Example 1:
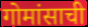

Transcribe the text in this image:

गोमांसाची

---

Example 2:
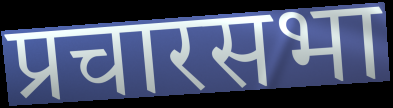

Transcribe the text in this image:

प्रचारसभा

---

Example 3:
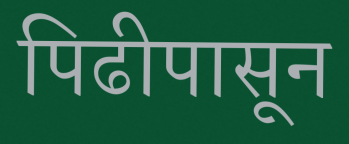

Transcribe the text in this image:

पिढीपासून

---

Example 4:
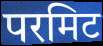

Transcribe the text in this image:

परमिट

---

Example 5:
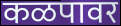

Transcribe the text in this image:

कळपावर